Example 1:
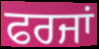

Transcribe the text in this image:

ਫਰਜਾਂ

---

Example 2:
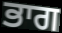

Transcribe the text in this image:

ਭਾਗ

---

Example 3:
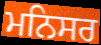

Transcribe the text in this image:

ਮਨਿਸਰ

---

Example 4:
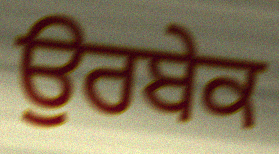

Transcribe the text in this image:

ਉਰਬੇਕ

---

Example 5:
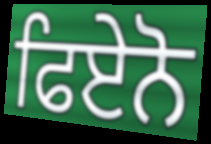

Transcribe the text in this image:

ਫਿਏਨੋ